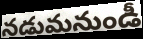
నడుమనుండీ